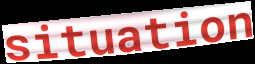
situation